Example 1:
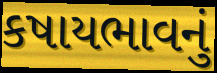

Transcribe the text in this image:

કષાયભાવનું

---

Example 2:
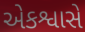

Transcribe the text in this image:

એકશ્વાસે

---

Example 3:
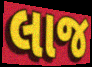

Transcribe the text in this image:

લાજ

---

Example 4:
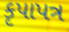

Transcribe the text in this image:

કૃપાપત્ર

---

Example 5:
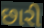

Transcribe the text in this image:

છારી